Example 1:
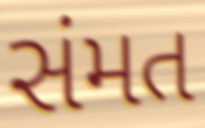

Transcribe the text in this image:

સંમત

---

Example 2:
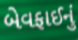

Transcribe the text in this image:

બેવફાઈનું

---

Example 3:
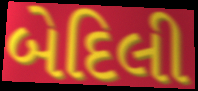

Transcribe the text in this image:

બેદિલી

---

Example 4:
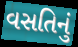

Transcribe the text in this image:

વસતિનું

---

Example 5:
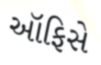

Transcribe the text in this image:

ઑફિસે